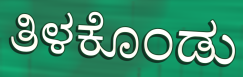
ತಿಳಕೊಂಡು